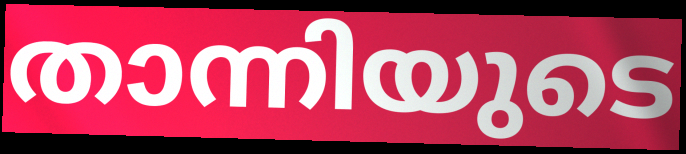
താന്നിയുടെ